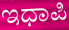
ಇಧಾಪಿ